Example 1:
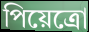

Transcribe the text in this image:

পিয়েত্রো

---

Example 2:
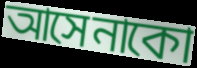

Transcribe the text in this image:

আসেনাকো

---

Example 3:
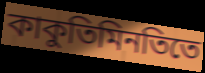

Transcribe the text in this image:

কাকুতিমিনতিতে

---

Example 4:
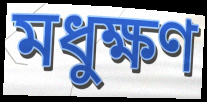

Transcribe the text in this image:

মধুক্ষণ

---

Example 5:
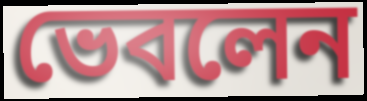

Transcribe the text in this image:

ভেবলেন